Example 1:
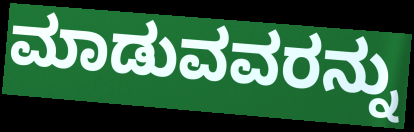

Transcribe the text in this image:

ಮಾಡುವವರನ್ನು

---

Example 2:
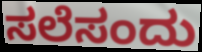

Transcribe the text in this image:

ಸಲೆಸಂದು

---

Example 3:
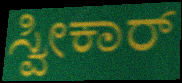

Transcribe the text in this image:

ಸ್ವೀಕಾರ್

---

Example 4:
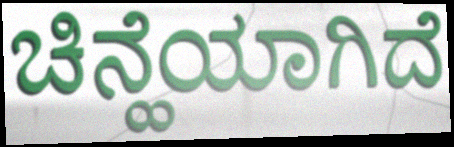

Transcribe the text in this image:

ಚಿನ್ಹೆಯಾಗಿದೆ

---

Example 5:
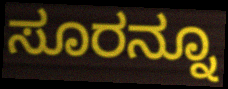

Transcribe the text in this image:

ಸೂರನ್ನೂ